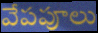
వేపపూలు